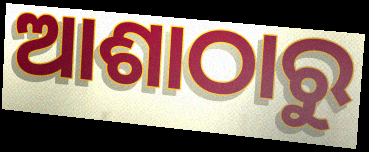
ଆଶାଠାରୁ